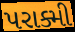
પરાક્મી